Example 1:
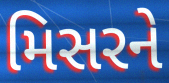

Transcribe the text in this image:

મિસરને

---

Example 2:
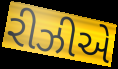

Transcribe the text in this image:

રીઝીએ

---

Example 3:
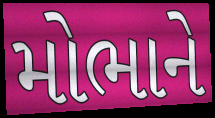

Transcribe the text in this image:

મોભાને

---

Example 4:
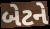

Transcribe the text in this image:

બેટને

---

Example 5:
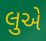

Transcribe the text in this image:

લુએ